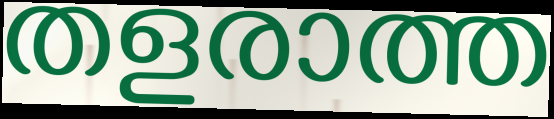
തളരാത്ത